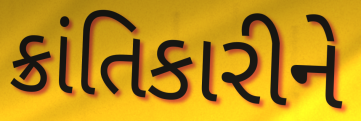
ક્રાંતિકારીને